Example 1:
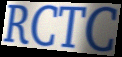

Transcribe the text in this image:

RCTC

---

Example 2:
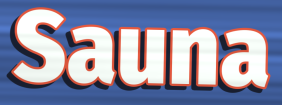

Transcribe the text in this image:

Sauna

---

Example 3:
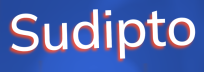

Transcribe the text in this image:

Sudipto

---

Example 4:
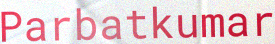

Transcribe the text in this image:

Parbatkumar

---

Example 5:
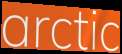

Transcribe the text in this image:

arctic